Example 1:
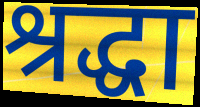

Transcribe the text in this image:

श्रद्धा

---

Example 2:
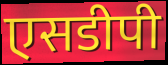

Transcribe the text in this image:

एसडीपी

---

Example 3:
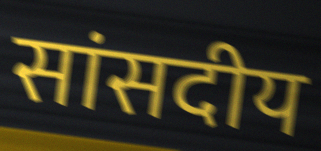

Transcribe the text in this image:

सांसदीय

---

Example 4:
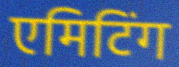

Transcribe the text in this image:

एमिटिंग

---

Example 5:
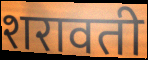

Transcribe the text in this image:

शरावती